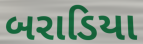
બરાડિયા